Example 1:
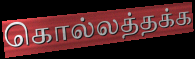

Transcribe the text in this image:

கொல்லத்தக்க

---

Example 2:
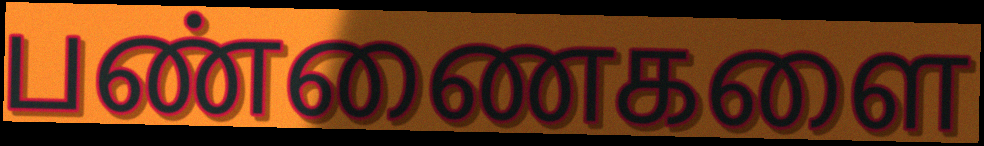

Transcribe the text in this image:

பண்ணைகளை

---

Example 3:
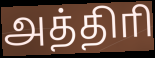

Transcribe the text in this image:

அத்திரி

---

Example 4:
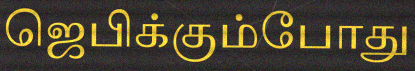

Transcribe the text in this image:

ஜெபிக்கும்போது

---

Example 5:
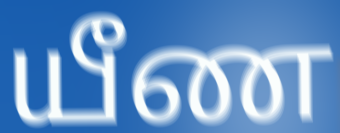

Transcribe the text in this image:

யீண